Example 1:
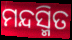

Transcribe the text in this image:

ମନ୍ଦସ୍ମିତ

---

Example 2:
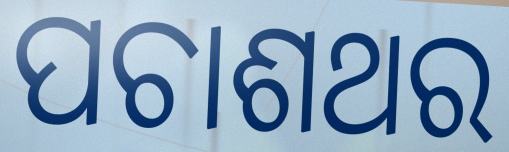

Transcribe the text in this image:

ପଚାଶଥର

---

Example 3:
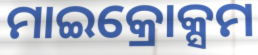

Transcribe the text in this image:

ମାଇକ୍ରୋକ୍ସମ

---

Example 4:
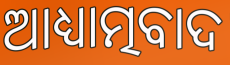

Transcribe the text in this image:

ଆଧ୍ୟାତ୍ମବାଦ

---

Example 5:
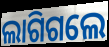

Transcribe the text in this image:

ଲାଗିଗଲେ